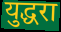
युद्धरा